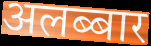
अलब्बार